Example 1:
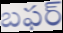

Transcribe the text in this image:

బఫర్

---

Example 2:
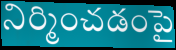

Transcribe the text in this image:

నిర్మించడంపై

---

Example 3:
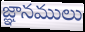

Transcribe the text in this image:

జ్ఞానములు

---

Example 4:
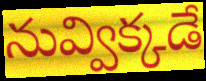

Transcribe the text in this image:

నువ్విక్కడే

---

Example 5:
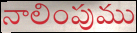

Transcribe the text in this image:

నాలింపుము